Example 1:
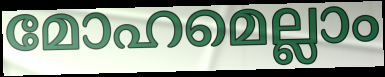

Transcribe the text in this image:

മോഹമെല്ലാം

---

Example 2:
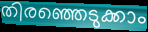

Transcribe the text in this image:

തിരഞ്ഞെടുക്കാം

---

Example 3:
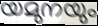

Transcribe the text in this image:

യമുനയും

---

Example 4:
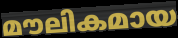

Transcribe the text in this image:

മൗലികമായ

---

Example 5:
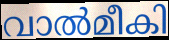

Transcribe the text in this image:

വാൽമീകി